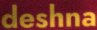
deshna